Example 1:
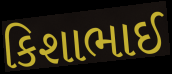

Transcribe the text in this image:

કિશાભાઈ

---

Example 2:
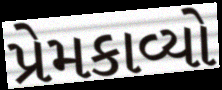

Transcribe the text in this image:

પ્રેમકાવ્યો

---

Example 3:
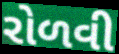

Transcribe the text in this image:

રોળવી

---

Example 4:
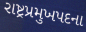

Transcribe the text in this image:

રાષ્ટ્રપ્રમુખપદના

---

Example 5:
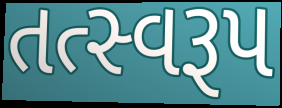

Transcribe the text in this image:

તત્સ્વરૂપ